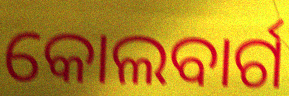
କୋଲବାର୍ଗ